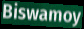
Biswamoy